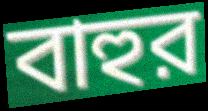
বাহুর